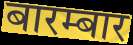
बारम्‍बार